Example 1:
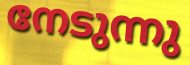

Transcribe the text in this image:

നേടുന്നു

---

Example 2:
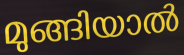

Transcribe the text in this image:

മുങ്ങിയാൽ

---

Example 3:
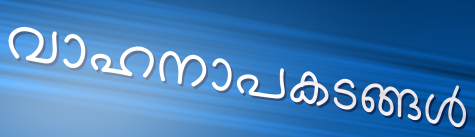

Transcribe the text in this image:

വാഹനാപകടങ്ങൾ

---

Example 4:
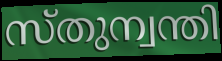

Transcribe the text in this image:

സ്തുന്വന്തി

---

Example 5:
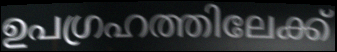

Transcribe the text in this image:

ഉപഗ്രഹത്തിലേക്ക്